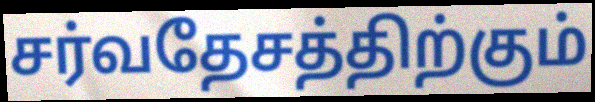
சர்வதேசத்திற்கும்